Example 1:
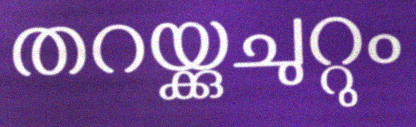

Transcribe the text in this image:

തറയ്ക്കുചുറ്റും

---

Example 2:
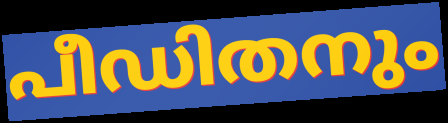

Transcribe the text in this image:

പീഡിതനും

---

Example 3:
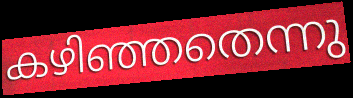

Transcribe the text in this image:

കഴിഞ്ഞതെന്നു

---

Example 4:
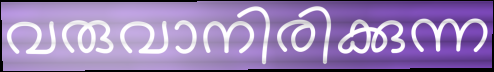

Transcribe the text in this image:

വരുവാനിരിക്കുന്ന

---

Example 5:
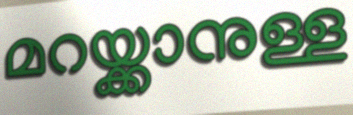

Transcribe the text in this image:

മറയ്ക്കാനുള്ള